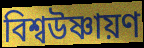
বিশ্বউষ্ণায়ণ